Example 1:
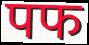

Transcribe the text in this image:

पफ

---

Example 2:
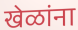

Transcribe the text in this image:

खेळांना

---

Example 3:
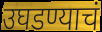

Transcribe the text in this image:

उघडण्याचं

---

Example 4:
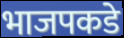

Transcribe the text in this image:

भाजपकडे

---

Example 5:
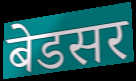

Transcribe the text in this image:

बेडसर